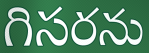
గిసరను